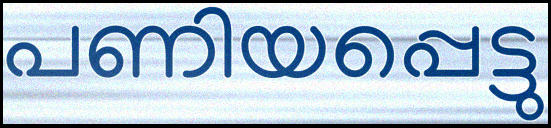
പണിയപ്പെട്ടു